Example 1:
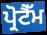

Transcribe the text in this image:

ਪ੍ਰੋਟੈੱਮ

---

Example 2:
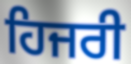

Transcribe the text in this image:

ਹਿਜਰੀ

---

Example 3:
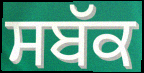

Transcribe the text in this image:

ਸਬੱਕ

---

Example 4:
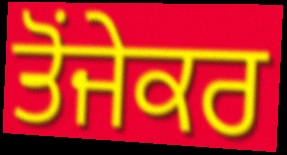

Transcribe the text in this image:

ਤੋਂਜੇਕਰ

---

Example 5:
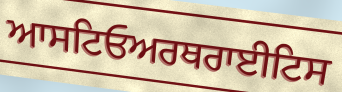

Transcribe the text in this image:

ਆਸਟਿਓਅਰਥਰਾਈਟਿਸ